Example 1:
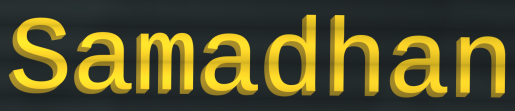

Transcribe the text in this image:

Samadhan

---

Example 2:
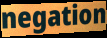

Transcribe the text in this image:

negation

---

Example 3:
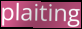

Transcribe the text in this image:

plaiting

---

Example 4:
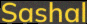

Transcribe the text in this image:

Sashal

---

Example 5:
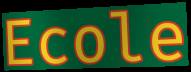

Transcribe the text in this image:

Ecole